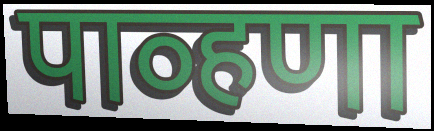
पाव्हणा